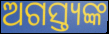
ଅଗସ୍ତ୍ୟଙ୍କ